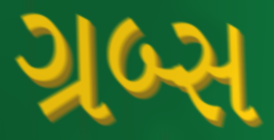
ગ્રબ્સ